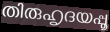
തിരുഹൃദയപ്പൂ